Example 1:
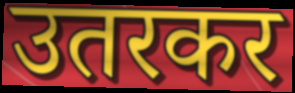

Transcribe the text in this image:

उतरकर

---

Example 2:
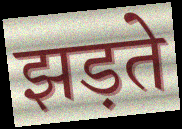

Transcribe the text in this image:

झड़ते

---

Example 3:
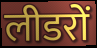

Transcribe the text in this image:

लीडरों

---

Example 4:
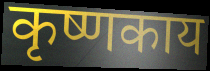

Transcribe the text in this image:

कृष्णकाय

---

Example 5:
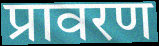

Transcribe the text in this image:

प्रावरण